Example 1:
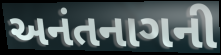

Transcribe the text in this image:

અનંતનાગની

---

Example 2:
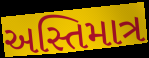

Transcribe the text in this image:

અસ્તિમાત્ર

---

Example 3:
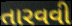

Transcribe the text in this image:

તારવવી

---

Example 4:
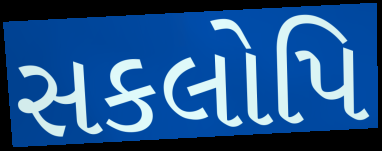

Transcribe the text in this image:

સકલોપિ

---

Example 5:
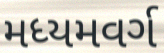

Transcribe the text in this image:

મધ્યમવર્ગ